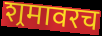
श्रमावरच